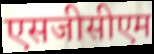
एसजीसीएम